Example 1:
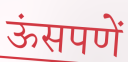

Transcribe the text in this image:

ऊंसपणें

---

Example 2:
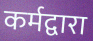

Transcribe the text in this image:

कर्मद्वारा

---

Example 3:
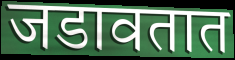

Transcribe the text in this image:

जडावतात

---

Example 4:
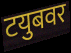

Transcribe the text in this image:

टयुबवर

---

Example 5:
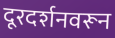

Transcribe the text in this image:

दूरदर्शनवरून